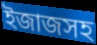
ইজাজসহ